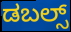
ಡಬಲ್ಸ್